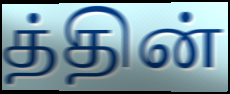
த்தின்